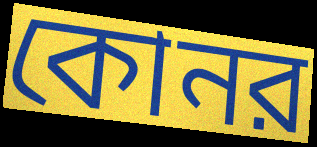
কোনর